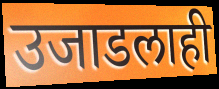
उजाडलाही